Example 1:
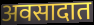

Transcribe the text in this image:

अवसादात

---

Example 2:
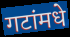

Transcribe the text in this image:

गटांमधे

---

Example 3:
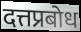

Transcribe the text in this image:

दत्तप्रबोध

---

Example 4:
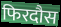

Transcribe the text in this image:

फिरदौस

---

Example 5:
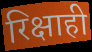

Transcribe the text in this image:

रिक्षाही